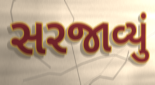
સરજાવ્યું